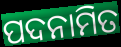
ପଦନାମିତ